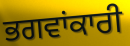
ਭਗਵਾਂਕਾਰੀ